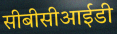
सीबीसीआईडी